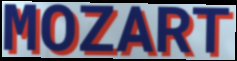
MOZART